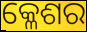
କ୍ଳେଶର